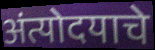
अंत्योदयाचे